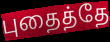
புதைத்தே